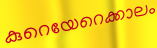
കുറെയേറെക്കാലം